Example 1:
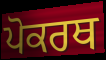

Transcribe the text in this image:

ਪੋਕਰਥ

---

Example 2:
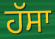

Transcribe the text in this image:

ਹੱਸਾ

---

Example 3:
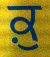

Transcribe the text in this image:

ਕ਼ੁ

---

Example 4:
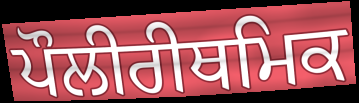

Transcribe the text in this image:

ਪੌਲੀਰੀਥਮਿਕ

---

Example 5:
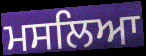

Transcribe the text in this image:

ਮਸਲਿਆ